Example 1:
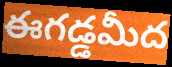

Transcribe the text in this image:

ఈగడ్డమీద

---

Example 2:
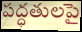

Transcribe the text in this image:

పద్ధతులపై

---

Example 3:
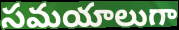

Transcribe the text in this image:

సమయాలుగా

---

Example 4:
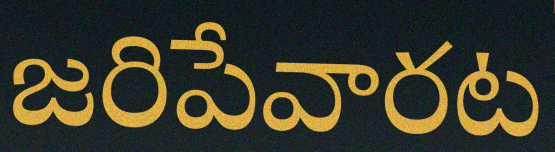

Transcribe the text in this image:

జరిపేవారట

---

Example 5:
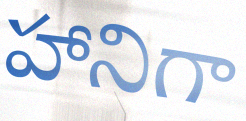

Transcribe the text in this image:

హానిగా